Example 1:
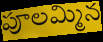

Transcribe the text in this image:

పూలమ్మిన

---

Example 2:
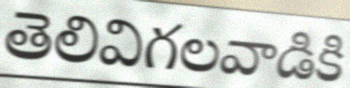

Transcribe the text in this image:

తెలివిగలవాడికి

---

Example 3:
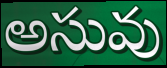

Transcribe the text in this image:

అసువు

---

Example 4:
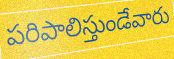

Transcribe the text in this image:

పరిపాలిస్తుండేవారు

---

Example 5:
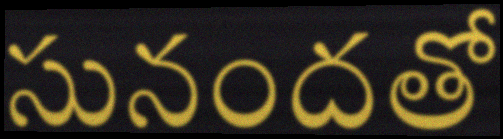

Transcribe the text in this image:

సునందతో